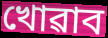
খোৱাব